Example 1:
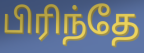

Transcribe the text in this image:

பிரிந்தே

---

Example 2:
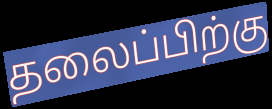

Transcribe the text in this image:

தலைப்பிற்கு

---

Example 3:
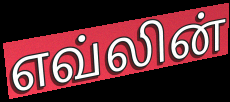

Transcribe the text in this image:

எவ்லின்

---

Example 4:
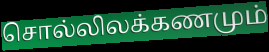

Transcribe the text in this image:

சொல்லிலக்கணமும்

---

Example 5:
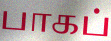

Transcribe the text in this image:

பாகப்